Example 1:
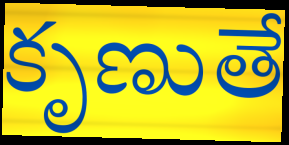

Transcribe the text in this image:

కృణుతే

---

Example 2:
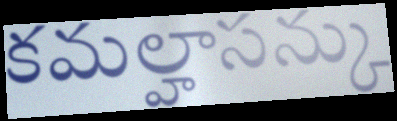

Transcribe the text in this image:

కమల్హాసన్కు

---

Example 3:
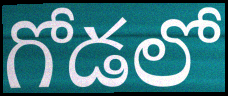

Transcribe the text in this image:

గోడలో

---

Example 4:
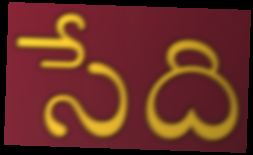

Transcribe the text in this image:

సేది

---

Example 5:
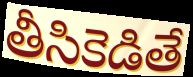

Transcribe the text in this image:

తీసికెడితే